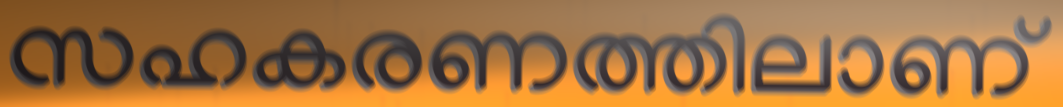
സഹകരണത്തിലാണ്